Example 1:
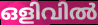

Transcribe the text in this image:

ഒളിവിൽ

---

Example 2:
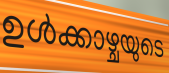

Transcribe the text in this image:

ഉൾക്കാഴ്ചയുടെ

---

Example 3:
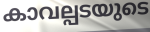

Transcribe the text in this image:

കാവല്പടയുടെ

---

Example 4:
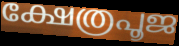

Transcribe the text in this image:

ക്ഷേത്രപൂജ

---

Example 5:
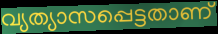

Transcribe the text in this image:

വ്യത്യാസപ്പെട്ടതാണ്